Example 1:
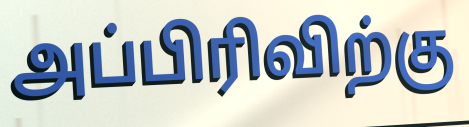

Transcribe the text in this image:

அப்பிரிவிற்கு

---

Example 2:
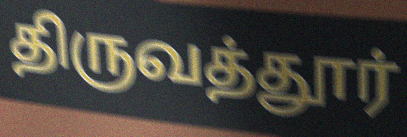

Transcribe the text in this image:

திருவத்தூர்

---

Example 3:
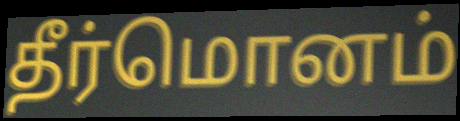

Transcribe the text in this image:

தீர்மொனம்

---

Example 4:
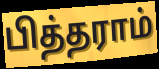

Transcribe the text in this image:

பித்தராம்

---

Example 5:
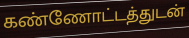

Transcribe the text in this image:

கண்ணோட்டத்துடன்